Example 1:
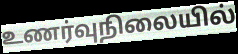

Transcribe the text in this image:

உணர்வுநிலையில்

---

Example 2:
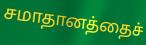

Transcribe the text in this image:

சமாதானத்தைச்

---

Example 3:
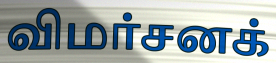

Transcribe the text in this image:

விமர்சனக்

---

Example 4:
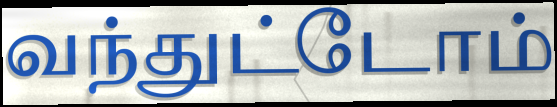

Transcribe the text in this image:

வந்துட்டோம்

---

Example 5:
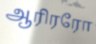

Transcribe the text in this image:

ஆரிரரோ